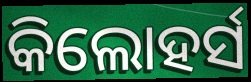
କିଲୋହର୍ସ